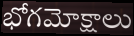
భోగమోక్షాలు